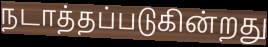
நடாத்தப்படுகின்றது